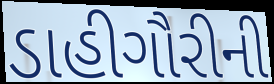
ડાહીગૌરીની